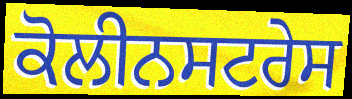
ਕੋਲੀਨਸਟਰੇਸ